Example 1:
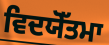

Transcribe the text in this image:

ਵਿਦਯੋੱਤਮਾ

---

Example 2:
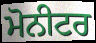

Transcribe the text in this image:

ਮੋਨੀਟਰ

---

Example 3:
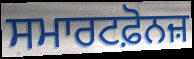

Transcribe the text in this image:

ਸਮਾਰਟਫ਼ੋਨਜ਼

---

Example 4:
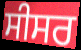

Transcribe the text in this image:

ਸੀਸਰ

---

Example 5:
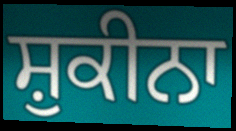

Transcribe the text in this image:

ਸ਼ੁਕੀਨਾ